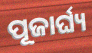
ପୂଜାର୍ଘ୍ୟ